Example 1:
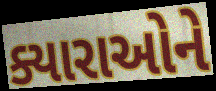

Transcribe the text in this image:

ક્યારાઓને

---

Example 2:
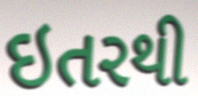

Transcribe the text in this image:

ઇતરથી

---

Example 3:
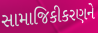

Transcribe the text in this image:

સામાજિકીકરણને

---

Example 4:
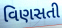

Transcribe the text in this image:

વિણસતી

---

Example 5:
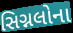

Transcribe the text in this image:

સિગ્નલોના